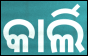
କାର୍ଲି